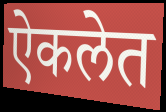
ऐकलेत